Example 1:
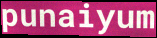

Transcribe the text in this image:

punaiyum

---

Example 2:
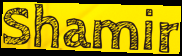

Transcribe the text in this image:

Shamir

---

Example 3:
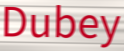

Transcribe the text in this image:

Dubey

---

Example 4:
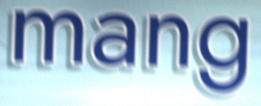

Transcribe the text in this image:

mang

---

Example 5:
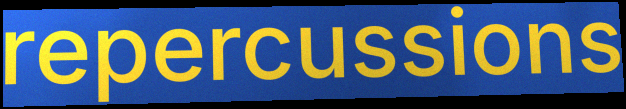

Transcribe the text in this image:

repercussions